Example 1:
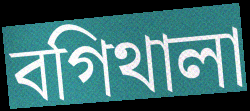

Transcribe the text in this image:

বগিথালা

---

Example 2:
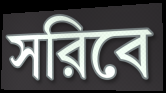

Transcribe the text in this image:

সরিবে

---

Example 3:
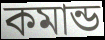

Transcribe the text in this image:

কমান্ড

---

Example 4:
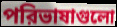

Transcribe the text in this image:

পরিভাষাগুলো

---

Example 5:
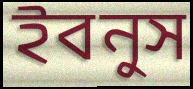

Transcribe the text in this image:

ইবনুস